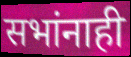
सभांनाही